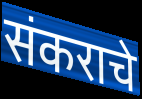
संकराचे